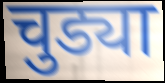
चुड्या